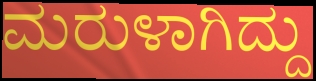
ಮರುಳಾಗಿದ್ದು